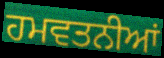
ਹਮਵਤਨੀਆਂ